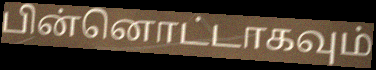
பின்னொட்டாகவும்